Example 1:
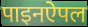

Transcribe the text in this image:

पाइनऐपल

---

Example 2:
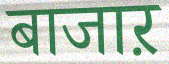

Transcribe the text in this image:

बाजाऱ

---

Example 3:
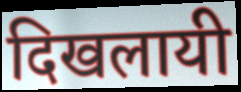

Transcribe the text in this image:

दिखलायी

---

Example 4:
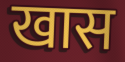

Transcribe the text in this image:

खास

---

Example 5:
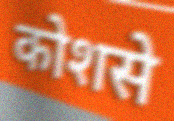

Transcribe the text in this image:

कोशसे